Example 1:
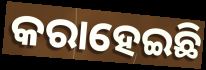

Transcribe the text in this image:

କରାହେଇଛି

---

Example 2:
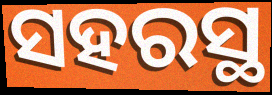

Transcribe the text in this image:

ସହରସ୍ଥ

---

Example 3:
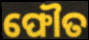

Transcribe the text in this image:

ଫୌତ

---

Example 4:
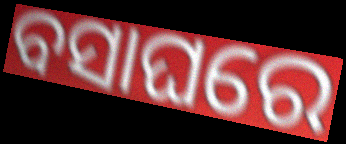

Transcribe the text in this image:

ବସାଘରେ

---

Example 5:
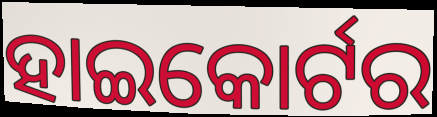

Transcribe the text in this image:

ହାଇକୋର୍ଟର